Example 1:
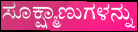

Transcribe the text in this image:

ಸೂಕ್ಷ್ಮಾಣುಗಳನ್ನು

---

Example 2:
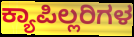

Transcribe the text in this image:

ಕ್ಯಾಪಿಲ್ಲರಿಗಳ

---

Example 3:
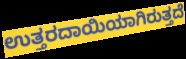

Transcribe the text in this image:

ಉತ್ತರದಾಯಿಯಾಗಿರುತ್ತದೆ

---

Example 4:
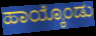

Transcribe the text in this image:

ಹಾಯ್ಕೊಂಡು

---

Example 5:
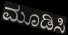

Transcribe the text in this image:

ಮೂಡಿಸಿ